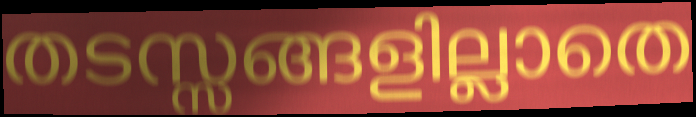
തടസ്സങ്ങളില്ലാതെ